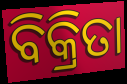
ବିକ୍ରିତା